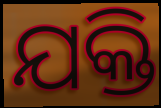
ଯକ୍ତି